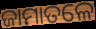
ଜାମାତଳେ